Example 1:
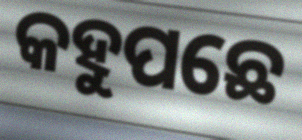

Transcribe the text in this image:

କହୁପଛେ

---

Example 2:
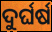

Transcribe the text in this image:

ଦୁର୍ଘର୍ଷ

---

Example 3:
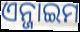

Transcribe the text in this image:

ଏନ୍ଜାଇମ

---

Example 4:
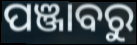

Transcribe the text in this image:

ପଞ୍ଜାବରୁ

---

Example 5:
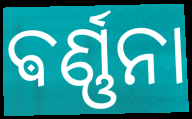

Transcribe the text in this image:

ଵର୍ଣ୍ଣନା